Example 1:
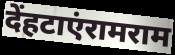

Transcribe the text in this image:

देंहटाएंरामराम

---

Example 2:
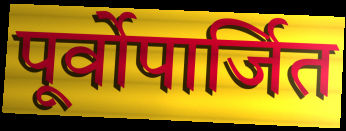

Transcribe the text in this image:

पूर्वोपार्जित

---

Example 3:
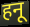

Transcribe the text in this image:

हनू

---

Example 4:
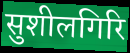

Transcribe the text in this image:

सुशीलगिरि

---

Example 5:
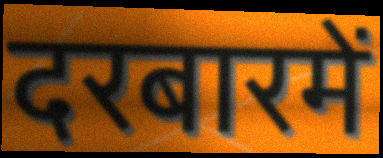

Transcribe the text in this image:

दरबारमें